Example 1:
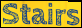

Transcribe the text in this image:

Stairs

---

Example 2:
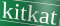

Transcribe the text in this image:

kitkat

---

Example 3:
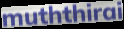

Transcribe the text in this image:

muththirai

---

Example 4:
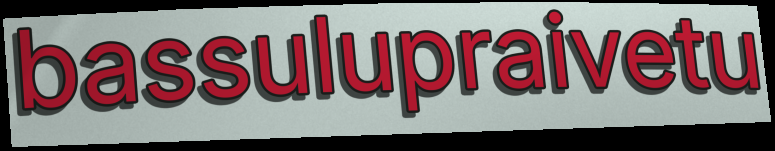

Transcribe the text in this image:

bassulupraivetu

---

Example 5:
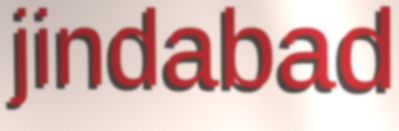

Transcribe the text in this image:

jindabad